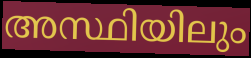
അസ്ഥിയിലും